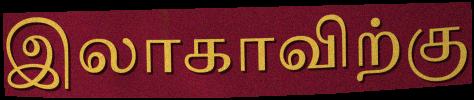
இலாகாவிற்கு